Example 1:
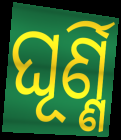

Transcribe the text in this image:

ଘୂର୍ଣ୍ଣି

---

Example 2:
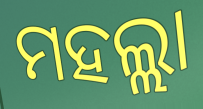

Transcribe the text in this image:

ମହଲ୍ଲା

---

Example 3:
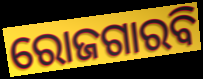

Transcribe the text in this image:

ରୋଜଗାରବି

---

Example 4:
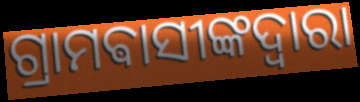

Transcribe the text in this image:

ଗ୍ରାମଵାସୀଙ୍କଦ୍ୱାରା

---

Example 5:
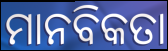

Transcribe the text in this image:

ମାନବିକତା